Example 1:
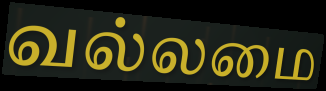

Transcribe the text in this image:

வல்லமை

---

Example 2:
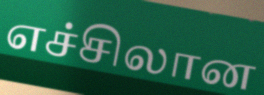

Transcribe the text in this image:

எச்சிலான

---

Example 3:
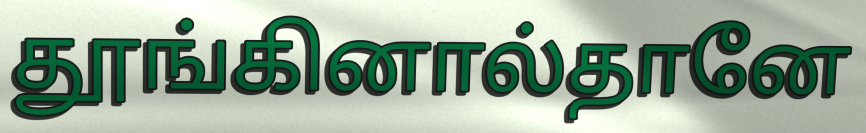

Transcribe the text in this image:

தூங்கினால்தானே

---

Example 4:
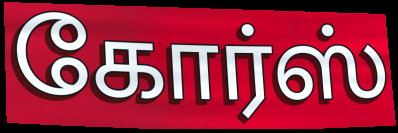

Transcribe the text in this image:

கோர்ஸ்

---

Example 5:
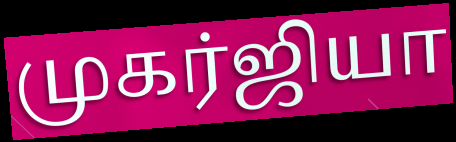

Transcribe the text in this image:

முகர்ஜியா